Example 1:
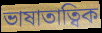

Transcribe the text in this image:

ভাষাতাত্বিক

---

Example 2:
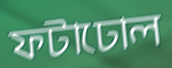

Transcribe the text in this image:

ফটাঢোল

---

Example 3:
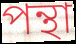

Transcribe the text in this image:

পন্থা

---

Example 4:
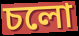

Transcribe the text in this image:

চলো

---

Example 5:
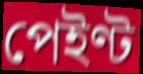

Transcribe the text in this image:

পেইণ্ট